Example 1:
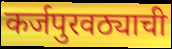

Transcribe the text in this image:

कर्जपुरवठ्याची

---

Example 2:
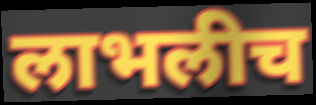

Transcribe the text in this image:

लाभलीच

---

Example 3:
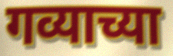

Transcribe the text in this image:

गव्याच्या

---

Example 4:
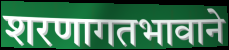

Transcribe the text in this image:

शरणागतभावाने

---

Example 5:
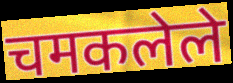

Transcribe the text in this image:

चमकलेले